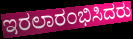
ಇರಲಾರಂಭಿಸಿದರು